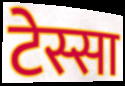
टेस्सा